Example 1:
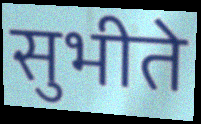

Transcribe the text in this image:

सुभीते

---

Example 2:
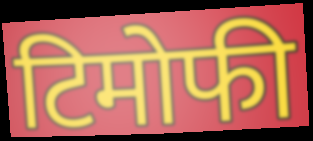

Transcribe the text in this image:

टिमोफी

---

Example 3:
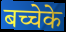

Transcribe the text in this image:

बच्चेके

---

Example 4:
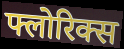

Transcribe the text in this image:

फ्लोरिक्स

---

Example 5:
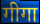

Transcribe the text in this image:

गीगा